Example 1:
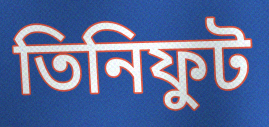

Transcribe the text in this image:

তিনিফুট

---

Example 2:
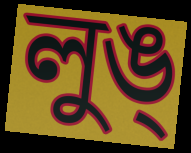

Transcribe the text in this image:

লুঙ্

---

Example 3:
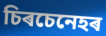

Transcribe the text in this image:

চিৰচেনেহৰ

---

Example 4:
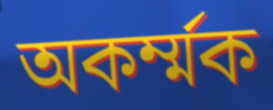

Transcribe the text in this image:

অকৰ্ম্মক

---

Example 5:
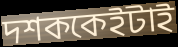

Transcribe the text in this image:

দশককেইটাই